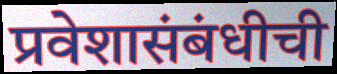
प्रवेशासंबंधीची